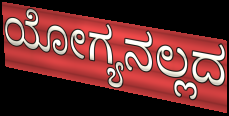
ಯೋಗ್ಯನಲ್ಲದ